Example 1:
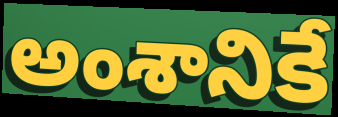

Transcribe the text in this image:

అంశానికే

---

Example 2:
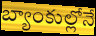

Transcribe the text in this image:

బ్యాంకుల్లోనే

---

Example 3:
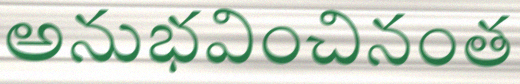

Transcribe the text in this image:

అనుభవించినంత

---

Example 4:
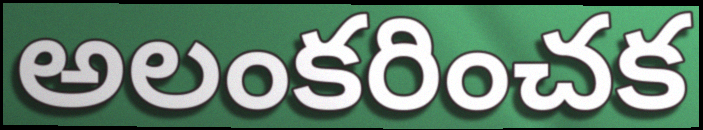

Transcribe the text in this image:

అలంకరించక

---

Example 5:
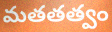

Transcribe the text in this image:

మతతత్వం